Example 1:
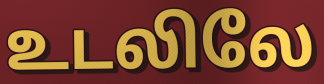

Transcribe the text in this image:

உடலிலே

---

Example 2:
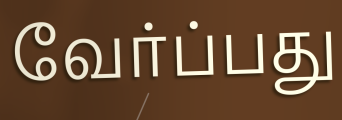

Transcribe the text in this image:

வேர்ப்பது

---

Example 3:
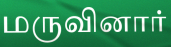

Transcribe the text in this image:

மருவினார்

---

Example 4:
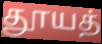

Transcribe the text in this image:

தூயத்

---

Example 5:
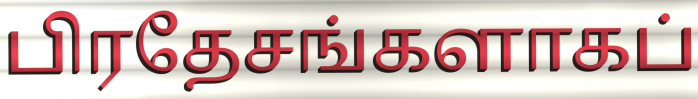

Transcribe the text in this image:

பிரதேசங்களாகப்